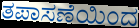
ತಪಾಸಣೆಯಿಂದ